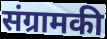
संग्रामकी